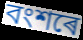
বংশৰে